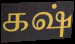
கஷ்